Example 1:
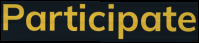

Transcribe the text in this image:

Participate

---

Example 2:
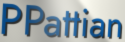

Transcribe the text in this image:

PPattian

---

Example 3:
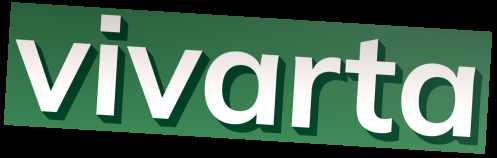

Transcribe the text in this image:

vivarta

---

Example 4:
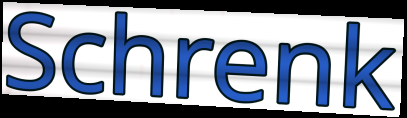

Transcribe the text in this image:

Schrenk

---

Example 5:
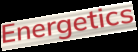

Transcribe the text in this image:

Energetics